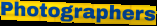
Photographers